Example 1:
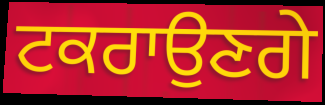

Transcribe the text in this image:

ਟਕਰਾਉਣਗੇ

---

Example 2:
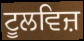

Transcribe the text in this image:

ਟੂਲਵਿਜ਼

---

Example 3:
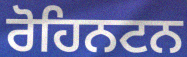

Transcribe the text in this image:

ਰੋਹਿਨਟਨ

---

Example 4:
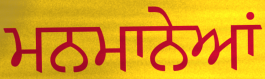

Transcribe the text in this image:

ਮਨਮਾਨੇਆਂ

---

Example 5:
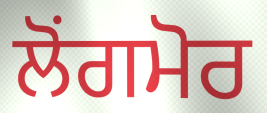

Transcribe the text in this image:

ਲੋਂਗਮੋਰ